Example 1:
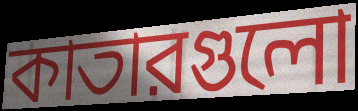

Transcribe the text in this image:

কাতারগুলো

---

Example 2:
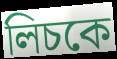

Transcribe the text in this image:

লিচকে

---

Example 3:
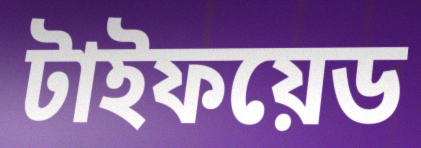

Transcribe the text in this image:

টাইফয়েড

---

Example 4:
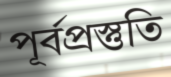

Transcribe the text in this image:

পূর্বপ্রস্তুতি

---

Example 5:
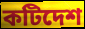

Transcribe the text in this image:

কটিদেশ